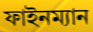
ফাইনম্যান